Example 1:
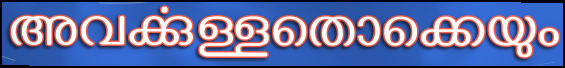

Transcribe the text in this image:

അവൎക്കുള്ളതൊക്കെയും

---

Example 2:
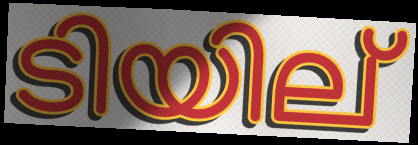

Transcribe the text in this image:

ടിയില്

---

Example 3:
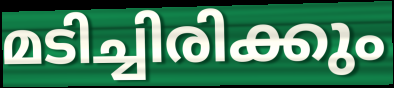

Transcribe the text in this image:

മടിച്ചിരിക്കും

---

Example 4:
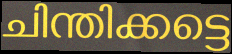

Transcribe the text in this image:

ചിന്തിക്കട്ടെ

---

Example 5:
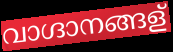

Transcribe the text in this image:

വാഗ്ദാനങ്ങള്